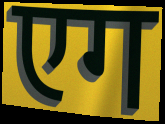
एग